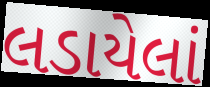
લડાયેલાં